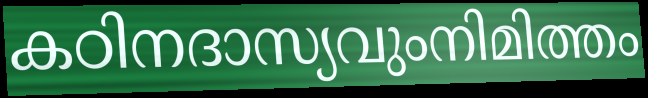
കഠിനദാസ്യവുംനിമിത്തം